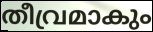
തീവ്രമാകും